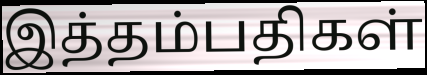
இத்தம்பதிகள்